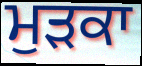
ਮੁੜਕਾ